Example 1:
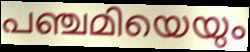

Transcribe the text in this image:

പഞ്ചമിയെയും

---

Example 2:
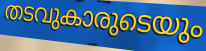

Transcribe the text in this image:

തടവുകാരുടെയും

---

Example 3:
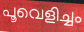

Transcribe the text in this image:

പൂവെളിച്ചം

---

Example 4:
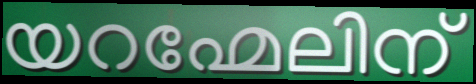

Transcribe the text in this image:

യറഹ്മേലിന്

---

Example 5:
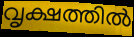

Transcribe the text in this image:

വൃക്ഷത്തിൽ